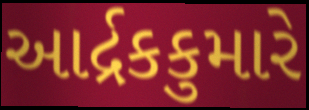
આર્દ્રકકુમારે